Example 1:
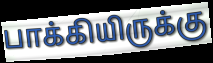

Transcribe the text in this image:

பாக்கியிருக்கு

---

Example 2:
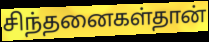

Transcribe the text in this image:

சிந்தனைகள்தான்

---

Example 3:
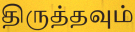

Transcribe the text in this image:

திருத்தவும்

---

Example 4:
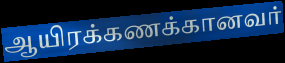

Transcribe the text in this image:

ஆயிரக்கணக்கானவர்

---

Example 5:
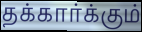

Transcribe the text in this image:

தக்கார்க்கும்